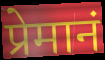
प्रेमानं